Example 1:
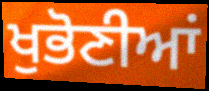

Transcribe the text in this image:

ਖੁਭੋਣੀਆਂ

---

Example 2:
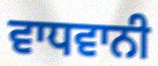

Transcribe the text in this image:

ਵਾਧਵਾਨੀ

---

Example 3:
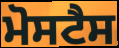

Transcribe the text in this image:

ਮੋਸਟੈਸ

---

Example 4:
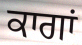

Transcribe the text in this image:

ਕਾਗਾਂ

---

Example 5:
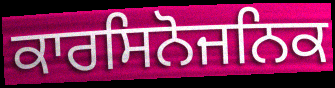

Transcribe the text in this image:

ਕਾਰਸਿਨੋਜਨਿਕ